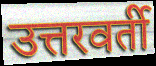
उत्तरवर्ती